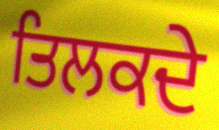
ਤਿਲਕਦੇ